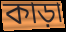
কাড়া